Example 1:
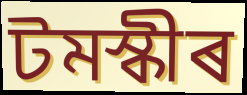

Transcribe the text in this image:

টমস্কীৰ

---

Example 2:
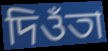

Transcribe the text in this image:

দিওঁতা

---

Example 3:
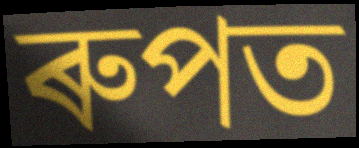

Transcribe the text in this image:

ৰুপত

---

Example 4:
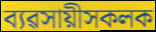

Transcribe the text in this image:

ব্যৱসায়ীসকলক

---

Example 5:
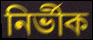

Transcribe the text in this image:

নিৰ্ভীক